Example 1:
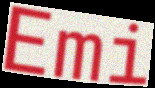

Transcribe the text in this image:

Emi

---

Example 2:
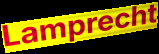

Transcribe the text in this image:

Lamprecht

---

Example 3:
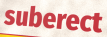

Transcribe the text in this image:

suberect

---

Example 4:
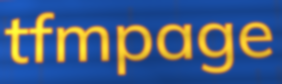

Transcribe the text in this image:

tfmpage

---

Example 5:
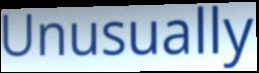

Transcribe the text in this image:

Unusually